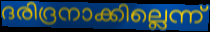
ദരിദ്രനാക്കില്ലെന്ന്